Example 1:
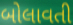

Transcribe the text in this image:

બોલાવતી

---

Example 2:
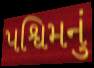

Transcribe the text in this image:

પશ્વિમનું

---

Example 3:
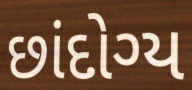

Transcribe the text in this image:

છાંદોગ્ય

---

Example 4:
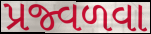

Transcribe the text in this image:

પ્રજ્વળવા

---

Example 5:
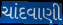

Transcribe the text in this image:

ચાંદવાણી